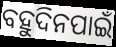
ବହୁଦିନପାଇଁ